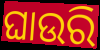
ଘାଉରି